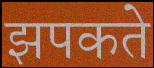
झपकते